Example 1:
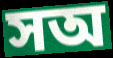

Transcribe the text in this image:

সঅ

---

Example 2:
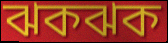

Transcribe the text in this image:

ঝকঝক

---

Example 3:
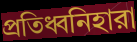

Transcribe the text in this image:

প্রতিধ্বনিহারা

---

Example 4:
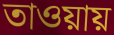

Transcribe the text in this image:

তাওয়ায়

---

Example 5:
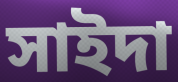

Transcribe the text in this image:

সাইদা